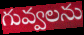
గువ్వలను